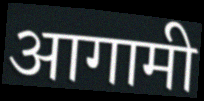
आगामी